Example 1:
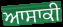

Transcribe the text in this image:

ਆਸਾਕੀ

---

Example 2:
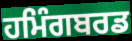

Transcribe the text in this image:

ਹਮਿੰਗਬਰਡ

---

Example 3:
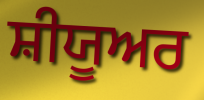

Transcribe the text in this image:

ਸ਼ੀਯੂਅਰ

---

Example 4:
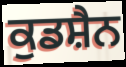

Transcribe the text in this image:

ਕੁਡਸ਼ੈਨ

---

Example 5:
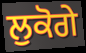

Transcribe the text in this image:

ਲੁਕੋਗੇ